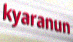
kyaranun